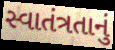
સ્વાતંત્રતાનું